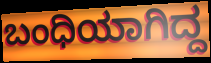
ಬಂಧಿಯಾಗಿದ್ದ